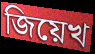
জিয়েখ